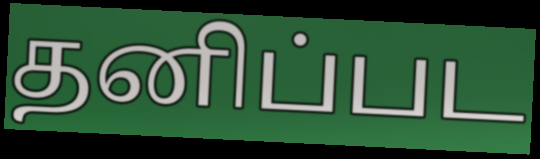
தனிப்பட